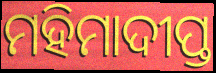
ମହିମାଦୀପ୍ତ